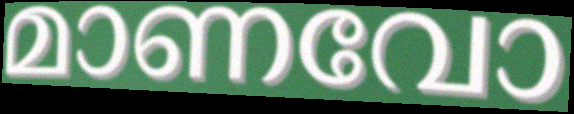
മാണവോ